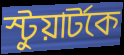
স্টুয়ার্টকে